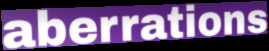
aberrations